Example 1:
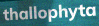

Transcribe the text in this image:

thallophyta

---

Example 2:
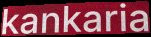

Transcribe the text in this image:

kankaria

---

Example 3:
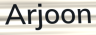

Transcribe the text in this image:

Arjoon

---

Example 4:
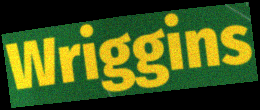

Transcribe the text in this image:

Wriggins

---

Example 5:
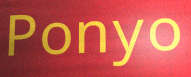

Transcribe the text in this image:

Ponyo